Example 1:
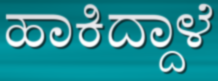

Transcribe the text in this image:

ಹಾಕಿದ್ದಾಳೆ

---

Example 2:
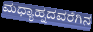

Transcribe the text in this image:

ಮಧ್ಯಾಹ್ನದವರೆಗಿನ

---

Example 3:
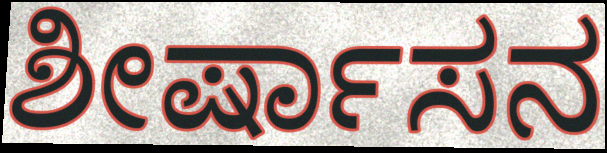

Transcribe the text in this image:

ಶೀರ್ಷಾಸನ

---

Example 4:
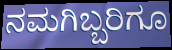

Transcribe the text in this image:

ನಮಗಿಬ್ಬರಿಗೂ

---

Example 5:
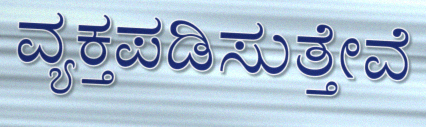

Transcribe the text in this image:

ವ್ಯಕ್ತಪಡಿಸುತ್ತೇವೆ